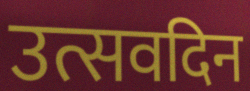
उत्सवदिन